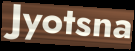
Jyotsna